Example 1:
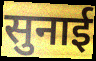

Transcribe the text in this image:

सुनाई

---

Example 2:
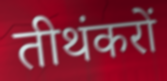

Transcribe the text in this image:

तीथंकरों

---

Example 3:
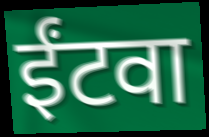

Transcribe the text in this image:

ईंटवा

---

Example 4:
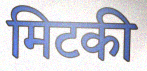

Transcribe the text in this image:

मिटकी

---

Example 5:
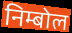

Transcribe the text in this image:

निम्बोल